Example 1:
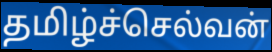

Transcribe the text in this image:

தமிழ்ச்செல்வன்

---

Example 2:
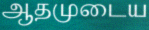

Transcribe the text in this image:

ஆதமுடைய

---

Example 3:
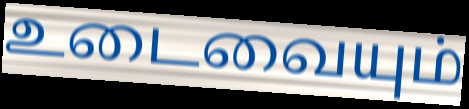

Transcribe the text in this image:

உடைவையும்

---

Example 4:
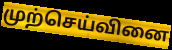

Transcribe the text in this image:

முற்செய்வினை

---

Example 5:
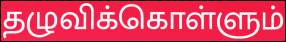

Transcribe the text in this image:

தழுவிக்கொள்ளும்